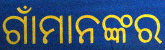
ଗାଁମାନଙ୍କର